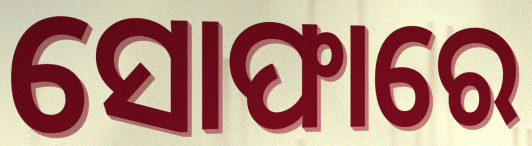
ସୋଫାରେ